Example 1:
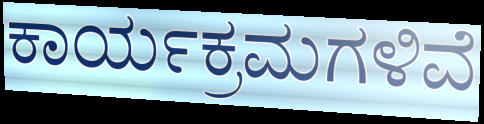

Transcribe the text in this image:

ಕಾರ್ಯಕ್ರಮಗಳಿವೆ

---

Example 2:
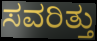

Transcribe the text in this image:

ಸವರಿತ್ತು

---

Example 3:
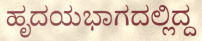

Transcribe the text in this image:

ಹೃದಯಭಾಗದಲ್ಲಿದ್ದ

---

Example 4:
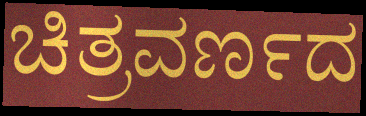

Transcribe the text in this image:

ಚಿತ್ರವರ್ಣದ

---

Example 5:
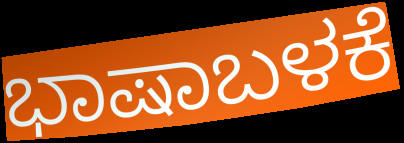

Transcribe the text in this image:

ಭಾಷಾಬಳಕೆ